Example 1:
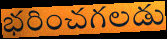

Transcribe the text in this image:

భరించగలడు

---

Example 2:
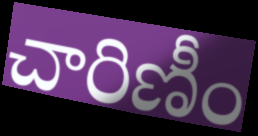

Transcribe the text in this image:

చారిణీం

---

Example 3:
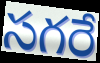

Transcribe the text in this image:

సగరే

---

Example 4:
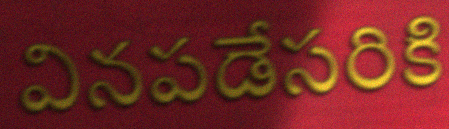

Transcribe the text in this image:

వినపడేసరికి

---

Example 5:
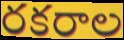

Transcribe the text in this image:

రకరాల